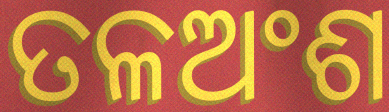
ତଳଅଂଶ